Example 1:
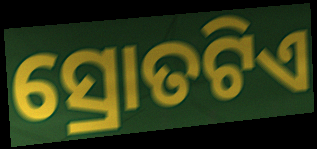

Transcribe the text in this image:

ସ୍ରୋତଟିଏ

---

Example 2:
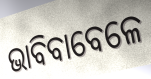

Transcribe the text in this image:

ଭାବିବାବେଳେ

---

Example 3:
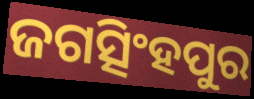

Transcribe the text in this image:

ଜଗତ୍ସିଂହପୁର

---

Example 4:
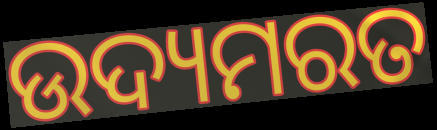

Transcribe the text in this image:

ଉଦ୍ୟମରତ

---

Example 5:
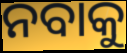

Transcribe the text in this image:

ନବାକୁ